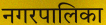
नगरपालिका